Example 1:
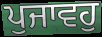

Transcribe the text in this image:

ਪੁਜਾਵਹੁ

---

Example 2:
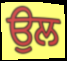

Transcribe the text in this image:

ਉਲ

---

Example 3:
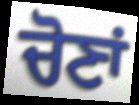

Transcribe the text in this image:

ਚੋਣਾਂ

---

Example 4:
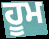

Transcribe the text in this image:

ਹੂਮ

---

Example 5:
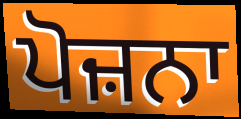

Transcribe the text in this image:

ਪੋਜ਼ਨਾ